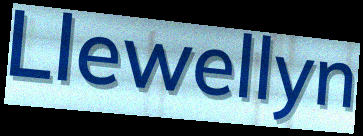
Llewellyn